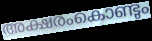
അക്ഷരംകൊണ്ടും